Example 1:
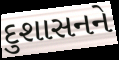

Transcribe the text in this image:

દુશાસનને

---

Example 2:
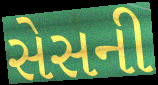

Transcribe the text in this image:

સેસની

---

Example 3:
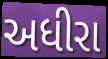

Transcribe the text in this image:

અધીરા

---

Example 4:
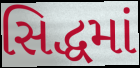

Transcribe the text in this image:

સિદ્ધમાં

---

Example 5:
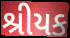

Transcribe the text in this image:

શ્રીયક